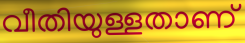
വീതിയുള്ളതാണ്